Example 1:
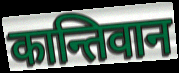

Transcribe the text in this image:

कान्तिवान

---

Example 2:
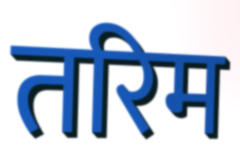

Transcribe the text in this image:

तरिम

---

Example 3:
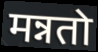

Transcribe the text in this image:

मन्नतो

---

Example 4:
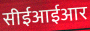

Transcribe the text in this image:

सीईआईआर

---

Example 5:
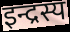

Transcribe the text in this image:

इन्द्रस्य